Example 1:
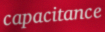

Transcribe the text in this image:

capacitance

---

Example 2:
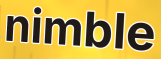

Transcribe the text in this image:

nimble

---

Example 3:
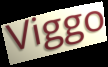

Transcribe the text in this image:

Viggo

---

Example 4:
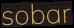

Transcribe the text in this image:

sobar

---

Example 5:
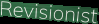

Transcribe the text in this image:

Revisionist